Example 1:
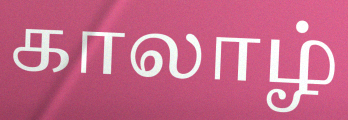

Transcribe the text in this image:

காலாழ்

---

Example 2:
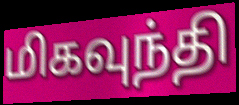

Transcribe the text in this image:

மிகவுந்தி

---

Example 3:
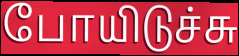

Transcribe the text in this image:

போயிடுச்சு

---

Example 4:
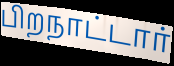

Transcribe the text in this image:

பிறநாட்டார்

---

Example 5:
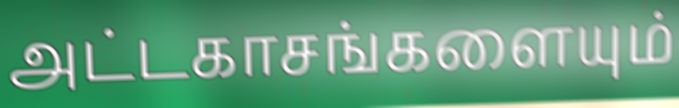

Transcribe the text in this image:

அட்டகாசங்களையும்